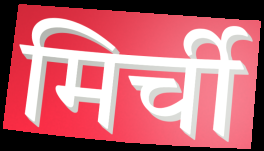
मिर्ची